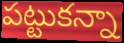
పట్టుకన్నా